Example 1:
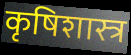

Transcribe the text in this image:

कृषिशास्त्र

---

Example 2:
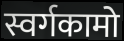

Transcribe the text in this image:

स्वर्गकामो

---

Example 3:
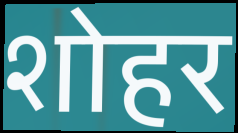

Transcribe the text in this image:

शोहर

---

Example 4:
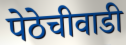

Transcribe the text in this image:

पेठेचीवाडी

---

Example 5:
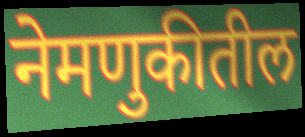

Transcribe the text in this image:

नेमणुकीतील